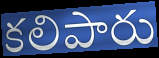
కలిపారు